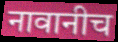
नावानीच